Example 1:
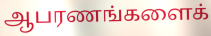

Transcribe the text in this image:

ஆபரணங்களைக்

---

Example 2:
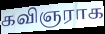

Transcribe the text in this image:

கவிஞராக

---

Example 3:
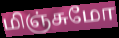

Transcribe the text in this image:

மிஞ்சுமோ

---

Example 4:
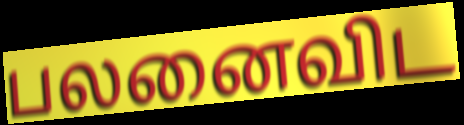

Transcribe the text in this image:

பலனைவிட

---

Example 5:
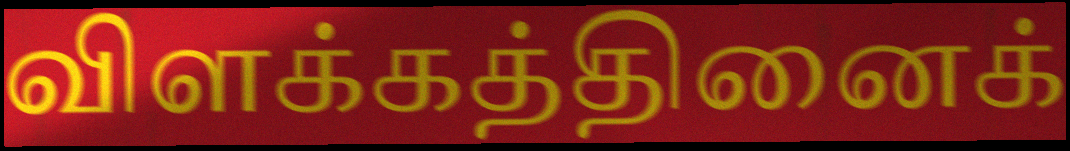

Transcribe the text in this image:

விளக்கத்தினைக்